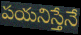
పయనిస్తేనే